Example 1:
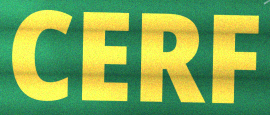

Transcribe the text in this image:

CERF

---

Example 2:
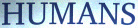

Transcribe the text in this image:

HUMANS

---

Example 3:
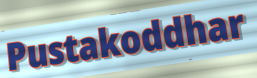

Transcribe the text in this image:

Pustakoddhar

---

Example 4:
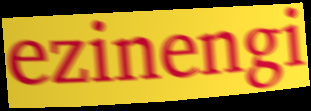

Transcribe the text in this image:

ezinengi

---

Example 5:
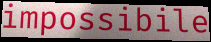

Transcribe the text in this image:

impossibile